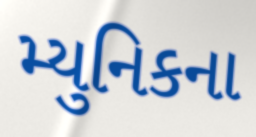
મ્યુનિકના